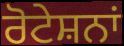
ਰੋਟੇਸ਼ਨਾਂ